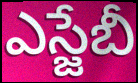
ఎస్జేబీ